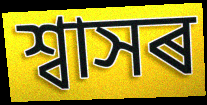
শ্বাসৰ